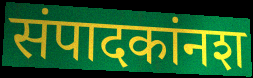
संपादकांनश